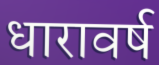
धारावर्ष